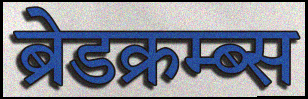
ब्रेडक्रम्ब्स